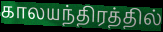
காலயந்திரத்தில்